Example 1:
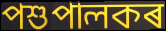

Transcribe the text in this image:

পশুপালকৰ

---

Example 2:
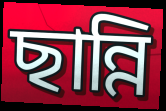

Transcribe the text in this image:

ছান্নি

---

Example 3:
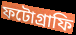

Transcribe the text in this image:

ফটোগ্ৰাফি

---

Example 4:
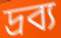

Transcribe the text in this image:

দ্ৰব্য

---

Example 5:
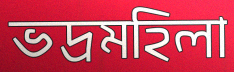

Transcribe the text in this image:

ভদ্ৰমহিলা